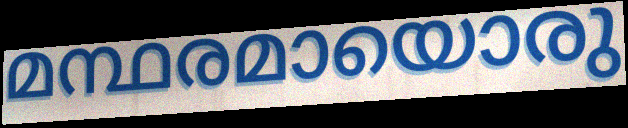
മന്ഥരമായൊരു